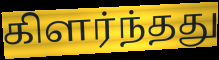
கிளர்ந்தது